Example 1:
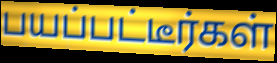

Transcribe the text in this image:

பயப்பட்டீர்கள்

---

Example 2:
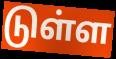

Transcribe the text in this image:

டுள்ள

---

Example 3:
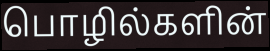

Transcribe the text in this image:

பொழில்களின்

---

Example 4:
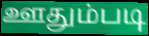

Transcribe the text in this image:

ஊதும்படி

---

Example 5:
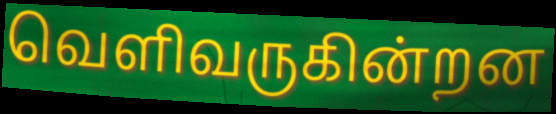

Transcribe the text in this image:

வெளிவருகின்றன